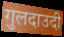
गुलदाउदी